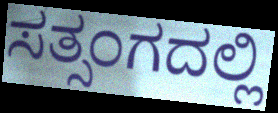
ಸತ್ಸಂಗದಲ್ಲಿ